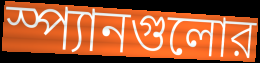
স্প্যানগুলোর